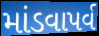
માંડવાપર્વ